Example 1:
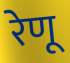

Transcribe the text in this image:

रेणू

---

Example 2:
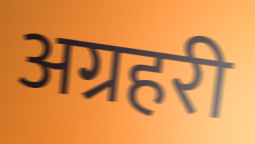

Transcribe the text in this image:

अग्रहरी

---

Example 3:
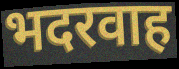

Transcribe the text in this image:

भदरवाह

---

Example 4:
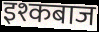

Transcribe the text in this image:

इश्कबाज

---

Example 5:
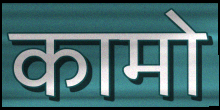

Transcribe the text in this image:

कामो